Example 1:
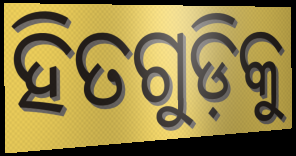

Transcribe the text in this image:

ହିତଗୁଡ଼ିକୁ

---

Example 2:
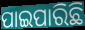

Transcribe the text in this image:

ପାଇପାରିଛି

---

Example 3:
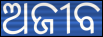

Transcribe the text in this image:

ଅଜୀବ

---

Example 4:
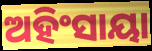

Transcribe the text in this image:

ଅହିଂସାୟା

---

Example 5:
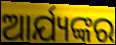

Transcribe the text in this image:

ଆର୍ଯ୍ୟଙ୍କର